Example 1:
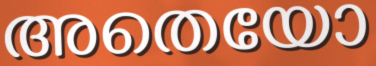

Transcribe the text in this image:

അതെയോ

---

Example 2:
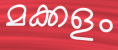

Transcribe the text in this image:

മക്കളം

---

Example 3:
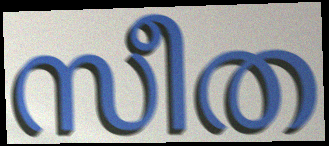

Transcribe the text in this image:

സീത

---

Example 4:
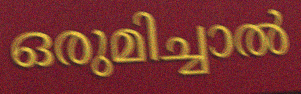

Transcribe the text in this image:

ഒരുമിച്ചാൽ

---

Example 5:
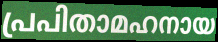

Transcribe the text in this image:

പ്രപിതാമഹനായ